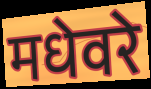
मधेवरे